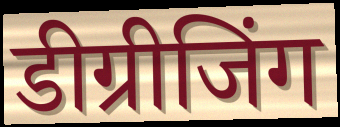
डीग्रीजिंग